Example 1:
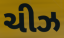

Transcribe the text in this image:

ચીઝ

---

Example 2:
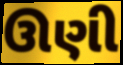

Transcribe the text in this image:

ઊણી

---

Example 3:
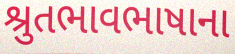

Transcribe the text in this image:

શ્રુતભાવભાષાના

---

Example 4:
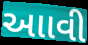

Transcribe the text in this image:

આાવી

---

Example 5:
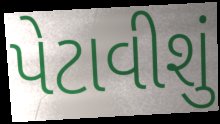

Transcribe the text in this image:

પેટાવીશું